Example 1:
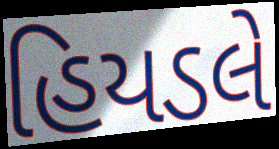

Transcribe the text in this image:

હિયડલે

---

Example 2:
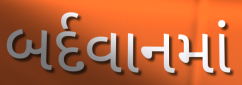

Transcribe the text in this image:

બર્દવાનમાં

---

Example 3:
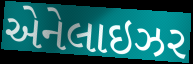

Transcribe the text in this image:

એનેલાઇઝર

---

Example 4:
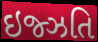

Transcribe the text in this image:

ઇજ્ઝતિ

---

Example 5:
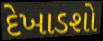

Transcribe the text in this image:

દેખાડશો